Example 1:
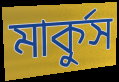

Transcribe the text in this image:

মার্কুস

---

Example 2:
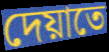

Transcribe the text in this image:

দেয়াতে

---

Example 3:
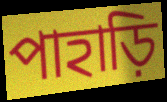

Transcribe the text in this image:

পাহাড়ি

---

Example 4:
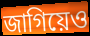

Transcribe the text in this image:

জাগিয়েও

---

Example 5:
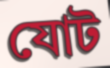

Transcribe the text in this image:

যোট